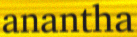
anantha